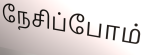
நேசிப்போம்